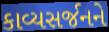
કાવ્યસર્જનને